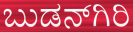
ಬುಡನ್‍ಗಿರಿ